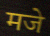
मजे